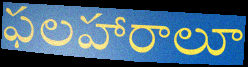
ఫలహారాలూ